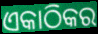
ଏକାଠିକର